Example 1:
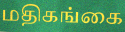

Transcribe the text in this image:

மதிகங்கை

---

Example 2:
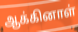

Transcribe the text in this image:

ஆக்கினாள்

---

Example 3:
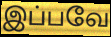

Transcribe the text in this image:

இப்பவே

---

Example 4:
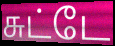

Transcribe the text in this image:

சுட்டே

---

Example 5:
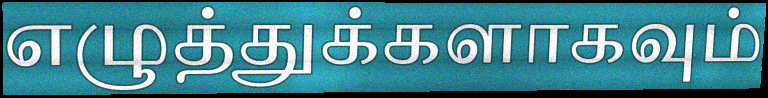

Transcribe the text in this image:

எழுத்துக்களாகவும்